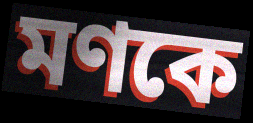
মণকে